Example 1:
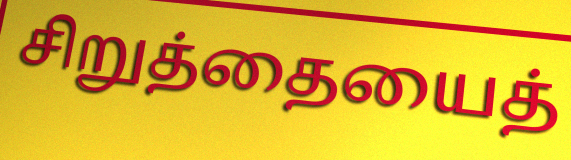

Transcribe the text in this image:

சிறுத்தையைத்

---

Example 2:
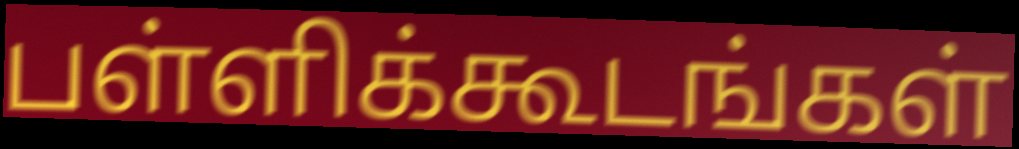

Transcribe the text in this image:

பள்ளிக்கூடங்கள்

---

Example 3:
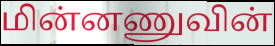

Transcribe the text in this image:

மின்னணுவின்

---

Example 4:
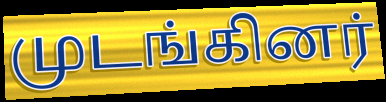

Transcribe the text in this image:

முடங்கினர்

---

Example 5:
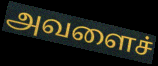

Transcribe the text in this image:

அவளைச்